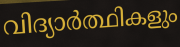
വിദ്യാർത്ഥികളും